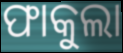
ଫାକୁଲା